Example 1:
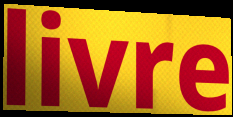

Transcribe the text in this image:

livre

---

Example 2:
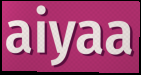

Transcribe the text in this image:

aiyaa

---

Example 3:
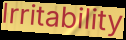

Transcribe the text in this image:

Irritability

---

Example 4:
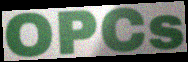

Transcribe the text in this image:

OPCs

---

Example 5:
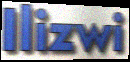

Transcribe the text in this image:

Ilizwi